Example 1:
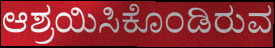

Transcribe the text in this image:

ಆಶ್ರಯಿಸಿಕೊಂಡಿರುವ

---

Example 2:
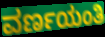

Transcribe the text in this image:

ವರ್ಣಯಂತಿ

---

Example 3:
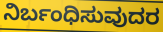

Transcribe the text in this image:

ನಿರ್ಬಂಧಿಸುವುದರ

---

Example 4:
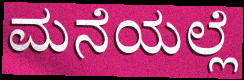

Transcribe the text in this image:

ಮನೆಯಲ್ಲೆ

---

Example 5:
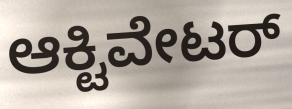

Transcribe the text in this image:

ಆಕ್ಟಿವೇಟರ್